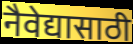
नैवेद्यासाठी